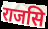
राजसि